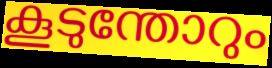
കൂടുന്തോറും